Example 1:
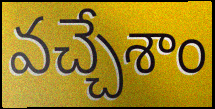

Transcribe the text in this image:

వచ్చేశాం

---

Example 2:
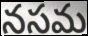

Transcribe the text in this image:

నసమ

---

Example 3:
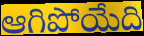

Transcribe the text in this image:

ఆగిపోయేది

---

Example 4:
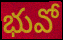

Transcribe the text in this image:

భువో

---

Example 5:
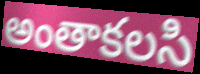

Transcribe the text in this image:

అంతాకలసి